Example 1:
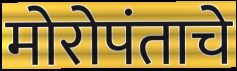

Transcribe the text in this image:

मोरोपंताचे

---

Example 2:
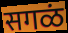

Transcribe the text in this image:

सगळं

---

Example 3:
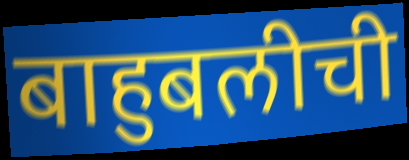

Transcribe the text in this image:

बाहुबलीची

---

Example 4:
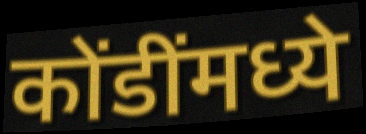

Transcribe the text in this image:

कोंडींमध्ये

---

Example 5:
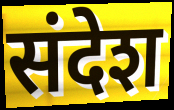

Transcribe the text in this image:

संदेश